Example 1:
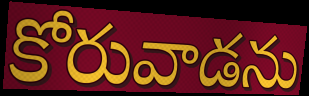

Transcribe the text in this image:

కోరువాడను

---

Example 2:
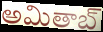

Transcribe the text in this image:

అమితాబ్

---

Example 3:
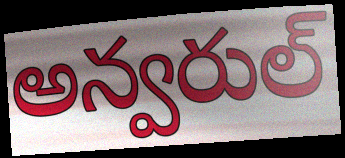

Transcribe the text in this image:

అన్వరుల్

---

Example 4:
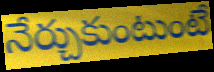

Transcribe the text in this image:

నేర్చుకుంటుంటే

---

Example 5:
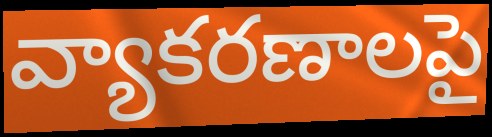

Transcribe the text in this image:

వ్యాకరణాలపై